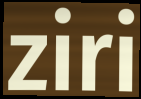
ziri